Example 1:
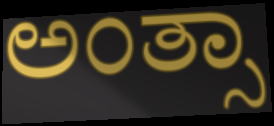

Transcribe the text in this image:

ಅಂತ್ಸಾ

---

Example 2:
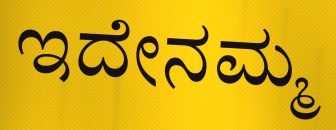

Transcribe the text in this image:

ಇದೇನಮ್ಮ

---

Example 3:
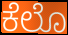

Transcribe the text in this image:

ಕೆಲೊ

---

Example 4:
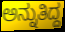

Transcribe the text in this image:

ಅನ್ನುತಿದ್ದ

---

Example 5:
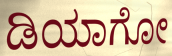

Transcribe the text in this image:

ಡಿಯಾಗೋ